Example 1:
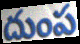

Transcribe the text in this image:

దుంప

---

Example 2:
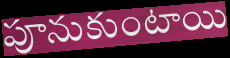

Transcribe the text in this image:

పూనుకుంటాయి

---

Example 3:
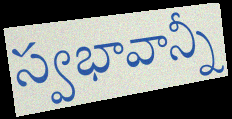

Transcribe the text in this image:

స్వభావాన్నీ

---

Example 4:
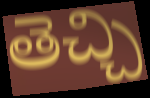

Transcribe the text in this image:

తెచ్చి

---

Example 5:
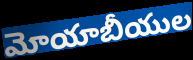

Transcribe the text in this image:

మోయాబీయుల